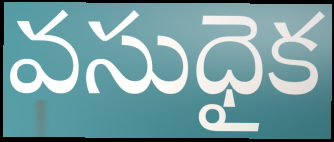
వసుధైక